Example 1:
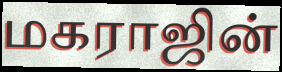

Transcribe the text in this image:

மகராஜின்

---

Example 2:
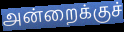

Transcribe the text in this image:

அன்றைக்குச்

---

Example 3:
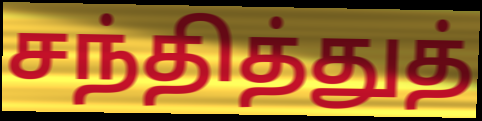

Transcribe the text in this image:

சந்தித்துத்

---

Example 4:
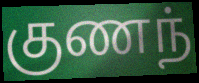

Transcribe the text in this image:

குணந்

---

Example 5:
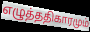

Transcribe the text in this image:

எழுத்ததிகாரமும்